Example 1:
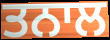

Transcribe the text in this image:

ਤਨਾਲ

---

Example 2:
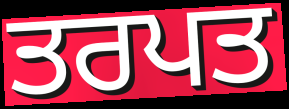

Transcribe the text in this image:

ਤਰਪਤ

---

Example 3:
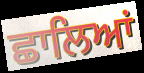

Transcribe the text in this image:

ਛਾਲਿਆਂ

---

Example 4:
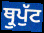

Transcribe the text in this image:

ਥ੍ਰੁਪੁੱਟ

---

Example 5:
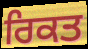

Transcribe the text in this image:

ਰਿਕਤ